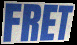
FRET